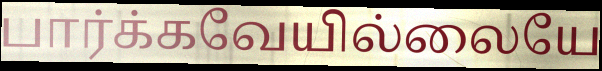
பார்க்கவேயில்லையே